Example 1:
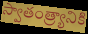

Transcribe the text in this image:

స్వాతంత్ర్యానికి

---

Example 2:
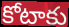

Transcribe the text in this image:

కోటాకు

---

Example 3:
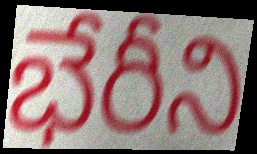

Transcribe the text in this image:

భేరీని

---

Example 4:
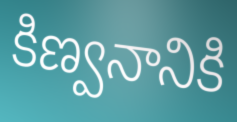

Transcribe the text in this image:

కిణ్వనానికి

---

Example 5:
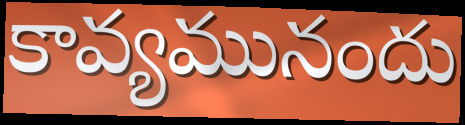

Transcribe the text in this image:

కావ్యమునందు